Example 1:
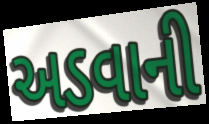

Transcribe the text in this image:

અડવાની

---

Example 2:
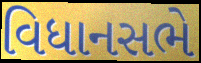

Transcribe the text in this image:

વિધાનસભે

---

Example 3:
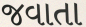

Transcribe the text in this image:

જવાતા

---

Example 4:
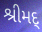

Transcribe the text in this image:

શ્રીમદ્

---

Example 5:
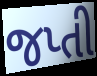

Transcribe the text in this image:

જપ્તી